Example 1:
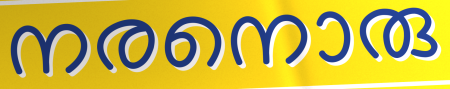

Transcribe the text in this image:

നരനൊരു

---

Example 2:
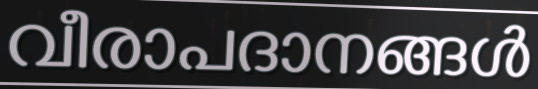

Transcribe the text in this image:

വീരാപദാനങ്ങൾ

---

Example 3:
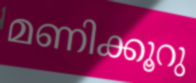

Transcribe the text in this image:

മണിക്കൂറു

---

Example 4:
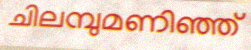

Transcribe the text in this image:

ചിലമ്പുമണിഞ്ഞ്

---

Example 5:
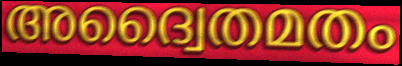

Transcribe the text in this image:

അദ്വൈതമതം